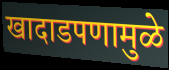
खादाडपणामुळे